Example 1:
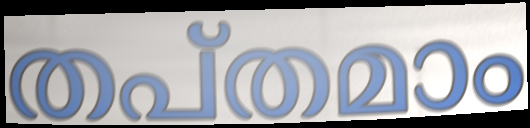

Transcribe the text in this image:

തപ്തമാം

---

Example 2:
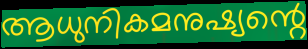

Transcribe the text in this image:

ആധുനികമനുഷ്യന്റെ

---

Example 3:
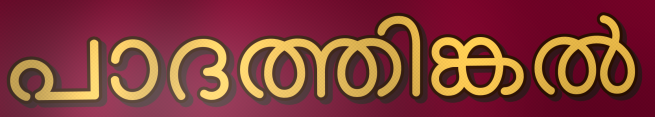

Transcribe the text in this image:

പാദത്തിങ്കൽ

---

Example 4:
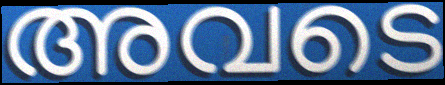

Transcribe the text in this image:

അവടെ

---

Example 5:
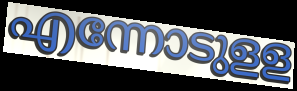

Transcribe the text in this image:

എന്നോടുളള